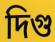
দিগু